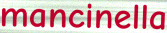
mancinella